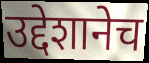
उद्देशानेच